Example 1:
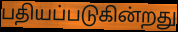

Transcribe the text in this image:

பதியப்படுகின்றது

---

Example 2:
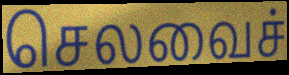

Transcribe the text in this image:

செலவைச்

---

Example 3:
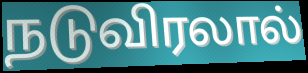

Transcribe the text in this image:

நடுவிரலால்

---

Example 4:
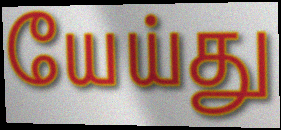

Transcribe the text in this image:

யேய்து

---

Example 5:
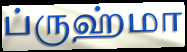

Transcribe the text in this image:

ப்ருஹ்மா